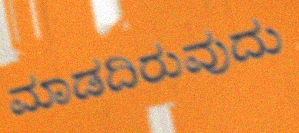
ಮಾಡದಿರುವುದು